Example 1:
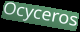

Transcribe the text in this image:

Ocyceros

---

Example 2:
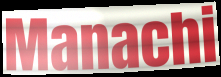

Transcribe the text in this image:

Manachi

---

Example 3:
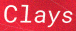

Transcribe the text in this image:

Clays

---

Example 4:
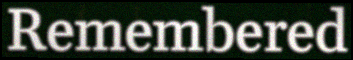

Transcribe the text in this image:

Remembered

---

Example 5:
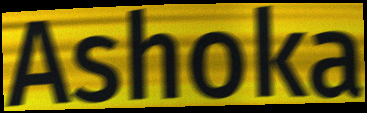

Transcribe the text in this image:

Ashoka